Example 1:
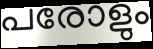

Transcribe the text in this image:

പരോളും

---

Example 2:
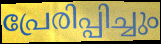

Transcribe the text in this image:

പ്രേരിപ്പിച്ചും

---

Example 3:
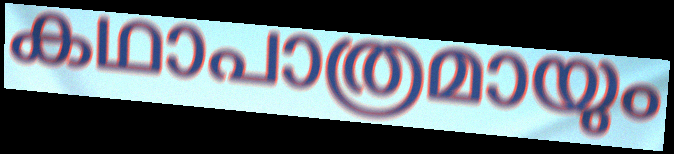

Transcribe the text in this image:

കഥാപാത്രമായും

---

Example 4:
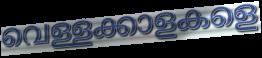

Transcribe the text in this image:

വെള്ളക്കാളകളെ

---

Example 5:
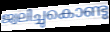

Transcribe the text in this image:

ജ്വലിച്ചുകൊണ്ടു